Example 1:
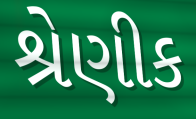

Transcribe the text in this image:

શ્રેણીક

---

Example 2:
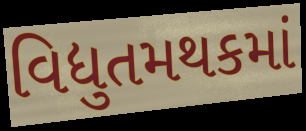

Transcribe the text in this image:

વિદ્યુતમથકમાં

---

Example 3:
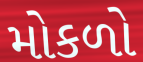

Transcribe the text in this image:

મોકળો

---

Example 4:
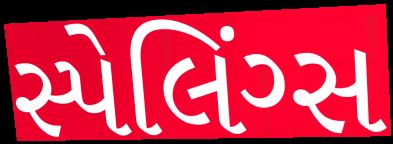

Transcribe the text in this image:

સ્પેલિંગ્સ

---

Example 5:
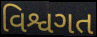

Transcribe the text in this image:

વિશ્વગત